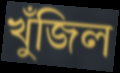
খুঁজিল